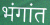
भंगांत